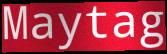
Maytag